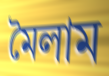
মৈলাম